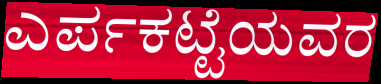
ಎರ್ಪಕಟ್ಟೆಯವರ